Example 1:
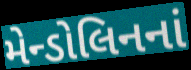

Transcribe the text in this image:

મેન્ડોલિનનાં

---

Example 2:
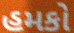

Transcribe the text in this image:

હમકો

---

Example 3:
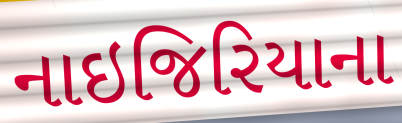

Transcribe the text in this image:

નાઇજિરિયાના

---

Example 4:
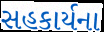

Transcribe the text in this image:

સહકાર્યના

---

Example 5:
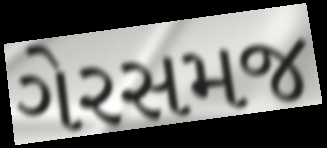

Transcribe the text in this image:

ગેરસમજ